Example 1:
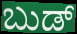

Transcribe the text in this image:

ಬುಡ್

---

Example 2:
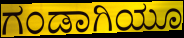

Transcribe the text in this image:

ಗಂಡಾಗಿಯೂ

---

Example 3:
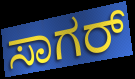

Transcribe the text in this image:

ಸಾಗರ್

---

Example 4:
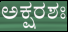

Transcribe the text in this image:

ಅಕ್ಷರಶಃ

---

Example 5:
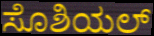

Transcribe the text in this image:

ಸೊಶಿಯಲ್